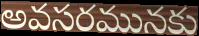
అవసరమునకు